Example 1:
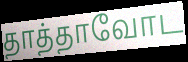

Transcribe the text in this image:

தாத்தாவோட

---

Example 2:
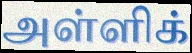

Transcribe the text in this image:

அள்ளிக்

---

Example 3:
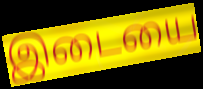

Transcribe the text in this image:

இடையை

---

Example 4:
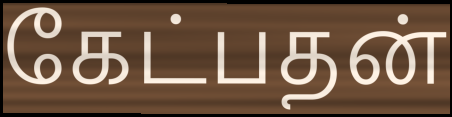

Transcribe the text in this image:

கேட்பதன்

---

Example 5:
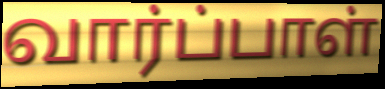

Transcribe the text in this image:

வார்ப்பாள்